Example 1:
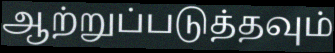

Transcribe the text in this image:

ஆற்றுப்படுத்தவும்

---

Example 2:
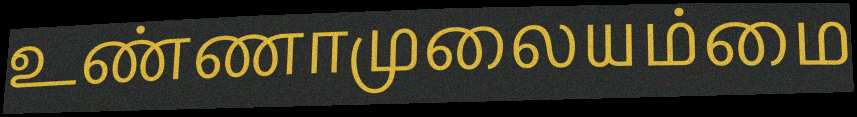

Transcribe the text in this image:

உண்ணாமுலையம்மை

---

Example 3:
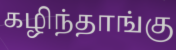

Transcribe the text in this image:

கழிந்தாங்கு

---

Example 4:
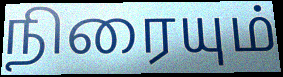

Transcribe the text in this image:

நிரையும்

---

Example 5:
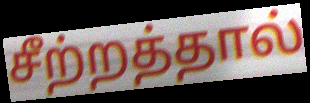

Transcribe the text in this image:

சீற்றத்தால்